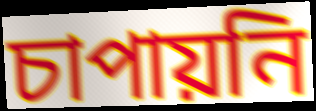
চাপায়নি